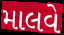
માલવે